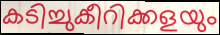
കടിച്ചുകീറിക്കളയും